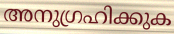
അനുഗ്രഹിക്കുക